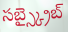
సబ్స్క్రైబ్